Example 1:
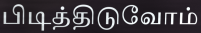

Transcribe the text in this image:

பிடித்திடுவோம்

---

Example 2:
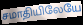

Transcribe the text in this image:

சமாதியிலேயே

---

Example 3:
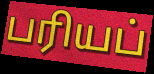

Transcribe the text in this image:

பரியப்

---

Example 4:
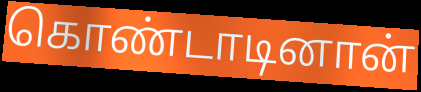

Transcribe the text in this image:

கொண்டாடினான்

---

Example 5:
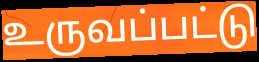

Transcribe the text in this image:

உருவப்பட்டு